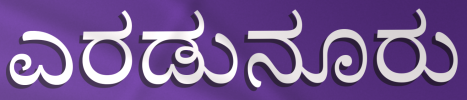
ಎರಡುನೂರು